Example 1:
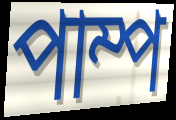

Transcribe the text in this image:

পাম্প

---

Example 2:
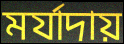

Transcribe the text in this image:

মর্যাদায়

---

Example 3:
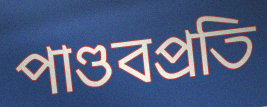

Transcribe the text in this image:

পাণ্ডবপ্রতি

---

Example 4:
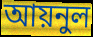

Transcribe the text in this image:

আয়নুল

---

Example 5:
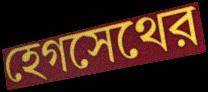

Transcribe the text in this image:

হেগসেথের